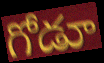
గోడూ